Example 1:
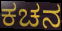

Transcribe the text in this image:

ಕಚನ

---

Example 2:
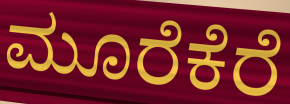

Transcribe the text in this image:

ಮೂರೆಕೆರೆ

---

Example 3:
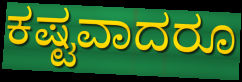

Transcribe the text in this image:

ಕಷ್ಟವಾದರೂ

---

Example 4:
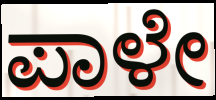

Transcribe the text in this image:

ಪಾಳೇ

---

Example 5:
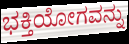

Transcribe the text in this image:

ಭಕ್ತಿಯೋಗವನ್ನು